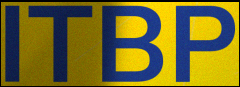
ITBP